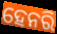
ହେନରି